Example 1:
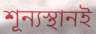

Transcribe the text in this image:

শূন্যস্থানই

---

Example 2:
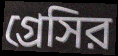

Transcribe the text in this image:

গ্রেসির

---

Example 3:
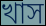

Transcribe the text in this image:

খাস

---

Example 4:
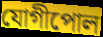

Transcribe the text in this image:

যোগীপোল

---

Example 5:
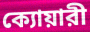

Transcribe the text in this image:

ক্যোয়ারী